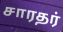
சாரதர்